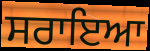
ਸਰਾਇਆ